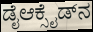
ಡೈಆಕ್ಸೈಡ್‌ನ